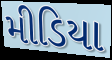
મીડિયા